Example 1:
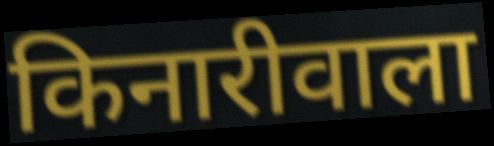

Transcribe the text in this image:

किनारीवाला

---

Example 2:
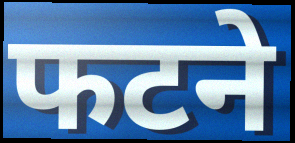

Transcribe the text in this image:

फटने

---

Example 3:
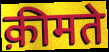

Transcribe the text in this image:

क़ीमते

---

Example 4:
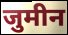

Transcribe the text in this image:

जुमीन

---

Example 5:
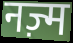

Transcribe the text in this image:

नज़्म